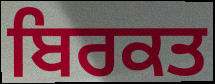
ਬਿਰਕਤ